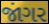
જાંગર